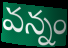
వన్నం